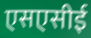
एसएसीई